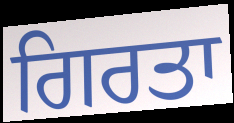
ਗਿਰਤਾ